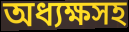
অধ্যক্ষসহ